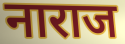
नाराज